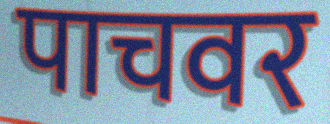
पाचवर